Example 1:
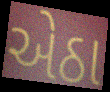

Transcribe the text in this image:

એઠા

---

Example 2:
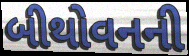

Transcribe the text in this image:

બીથોવનની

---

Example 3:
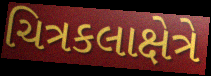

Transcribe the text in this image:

ચિત્રકલાક્ષેત્રે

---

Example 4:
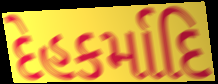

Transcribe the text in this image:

દેહકર્માદિ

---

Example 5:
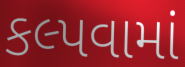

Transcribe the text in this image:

કલ્પવામાં